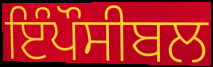
ਇੰਪੌਸੀਬਲ